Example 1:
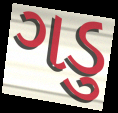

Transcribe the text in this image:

ગડુ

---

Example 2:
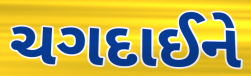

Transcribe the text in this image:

ચગદાઈને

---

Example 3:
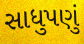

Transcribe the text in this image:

સાધુપણું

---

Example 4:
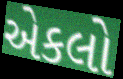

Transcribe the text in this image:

એકલો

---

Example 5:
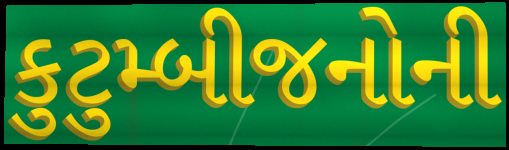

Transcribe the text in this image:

કુટુમ્બીજનોની